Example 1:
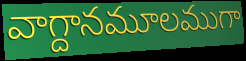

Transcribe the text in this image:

వాగ్దానమూలముగా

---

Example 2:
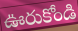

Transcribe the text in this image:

ఊరుకోండి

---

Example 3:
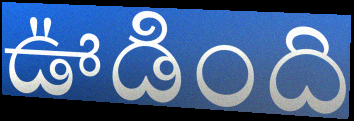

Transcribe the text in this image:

ఊడింది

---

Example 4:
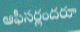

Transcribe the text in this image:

ఆఫీసర్లందరూ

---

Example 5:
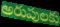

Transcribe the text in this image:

అరుపులకు